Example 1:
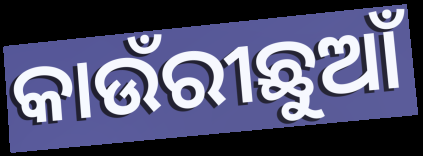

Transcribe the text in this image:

କାଉଁରୀଛୁଆଁ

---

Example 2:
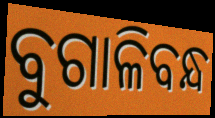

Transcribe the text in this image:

ବୁଗାଳିବନ୍ଧ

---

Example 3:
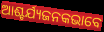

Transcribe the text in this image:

ଆଶ୍ଚର୍ଯ୍ୟଜନକଭାବେ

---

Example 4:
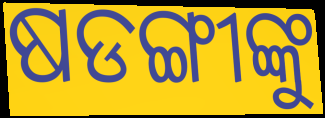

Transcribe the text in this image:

ଷଡଙ୍ଗୀଙ୍କୁ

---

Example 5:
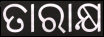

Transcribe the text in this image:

ତାରାକ୍ଷ